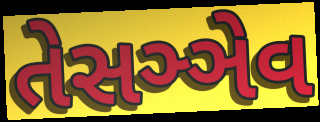
તેસઞ્ઞેવ